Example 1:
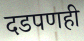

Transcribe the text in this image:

दडपणही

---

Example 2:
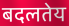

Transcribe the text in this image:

बदलतेय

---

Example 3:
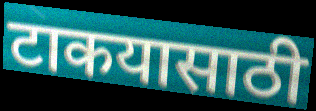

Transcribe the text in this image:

टाकयासाठी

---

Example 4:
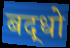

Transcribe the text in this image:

बद्धो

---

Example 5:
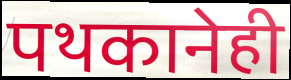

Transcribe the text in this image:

पथकानेही